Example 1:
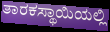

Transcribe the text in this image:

ತಾರಕಸ್ಥಾಯಿಯಲ್ಲಿ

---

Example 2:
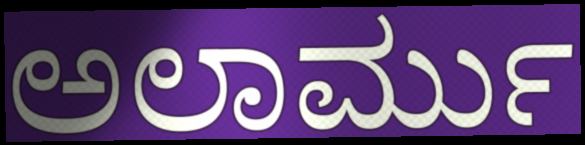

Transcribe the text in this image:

ಅಲಾರ್ಮು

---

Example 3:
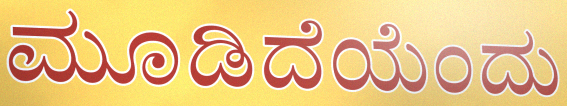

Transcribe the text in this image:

ಮೂಡಿದೆಯೆಂದು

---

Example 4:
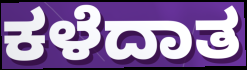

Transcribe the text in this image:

ಕಳೆದಾತ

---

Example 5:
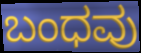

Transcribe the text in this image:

ಬಂಧವು